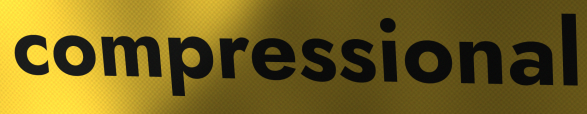
compressional